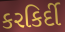
કરકિર્દી